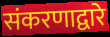
संकरणाद्वारे